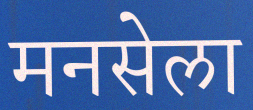
मनसेला